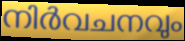
നിർവചനവും